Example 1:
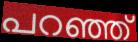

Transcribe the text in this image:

പറഞ്ഞ്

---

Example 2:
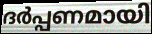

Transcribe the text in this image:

ദർപ്പണമായി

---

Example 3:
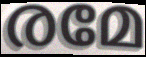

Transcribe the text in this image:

രമേ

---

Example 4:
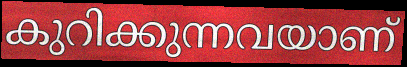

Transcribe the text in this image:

കുറിക്കുന്നവയാണ്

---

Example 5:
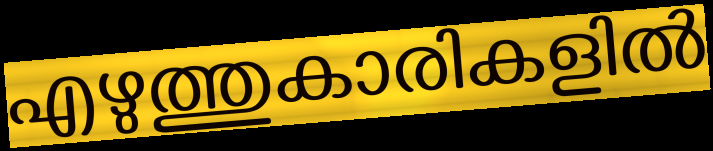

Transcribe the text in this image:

എഴുത്തുകാരികളിൽ